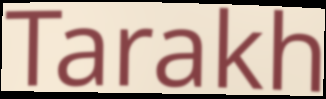
Tarakh